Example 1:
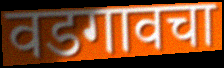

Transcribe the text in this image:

वडगावचा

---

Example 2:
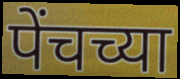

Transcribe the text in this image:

पेंचच्या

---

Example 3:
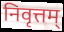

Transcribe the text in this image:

निवृत्तम्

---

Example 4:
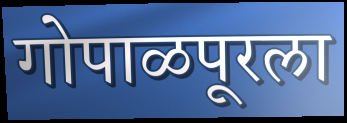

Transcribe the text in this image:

गोपाळपूरला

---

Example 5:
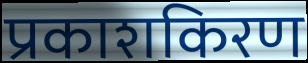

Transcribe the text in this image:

प्रकाशकिरण